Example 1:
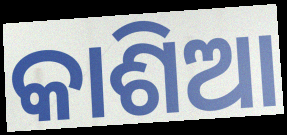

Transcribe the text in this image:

କାଶିଆ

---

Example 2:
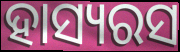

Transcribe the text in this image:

ହାସ୍ୟରସ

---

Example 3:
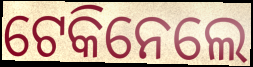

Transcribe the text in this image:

ଟେକିନେଲେ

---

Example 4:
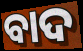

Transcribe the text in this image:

ବାଦ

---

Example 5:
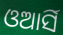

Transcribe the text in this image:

ଓଆର୍ସି